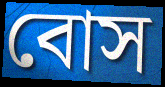
বোস